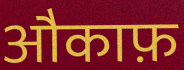
औकाफ़